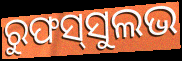
ରୁଫସ୍‌ସୁଲଭ